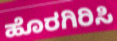
ಹೊರಗಿರಿಸಿ